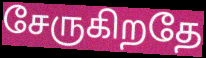
சேருகிறதே